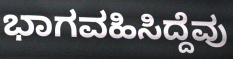
ಭಾಗವಹಿಸಿದ್ದೆವು